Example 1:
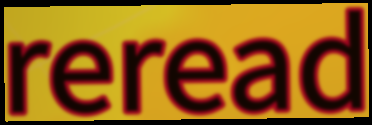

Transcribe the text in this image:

reread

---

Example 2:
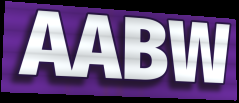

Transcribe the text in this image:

AABW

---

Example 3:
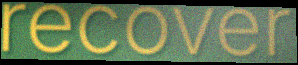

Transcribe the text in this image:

recover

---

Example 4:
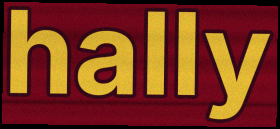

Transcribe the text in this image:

hally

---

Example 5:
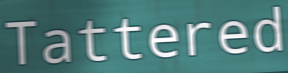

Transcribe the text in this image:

Tattered